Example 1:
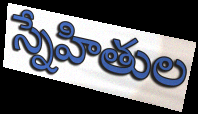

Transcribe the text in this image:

స్నేహితుల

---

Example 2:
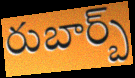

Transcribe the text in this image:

రుబార్బ్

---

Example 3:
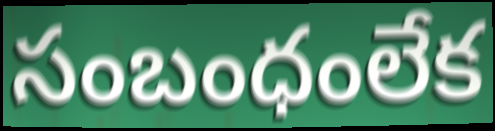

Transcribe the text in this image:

సంబంధంలేక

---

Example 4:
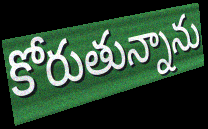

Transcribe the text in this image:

కోరుతున్నాను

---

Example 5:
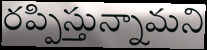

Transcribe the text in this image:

రప్పిస్తున్నామని